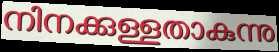
നിനക്കുള്ളതാകുന്നു